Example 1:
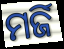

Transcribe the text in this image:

ମର୍ଜି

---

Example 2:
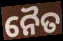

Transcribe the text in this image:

ନୈତ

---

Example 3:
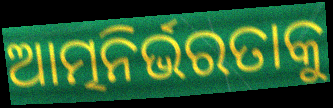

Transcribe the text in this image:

ଆତ୍ମନିର୍ଭରତାକୁ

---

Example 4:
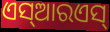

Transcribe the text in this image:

ଏସ୍ଆରଏସ୍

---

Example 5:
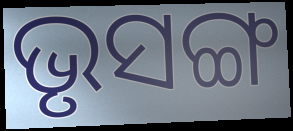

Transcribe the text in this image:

ଭୃସଙ୍ଗ